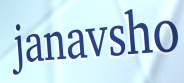
janavsho